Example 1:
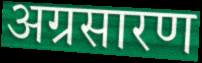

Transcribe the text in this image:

अग्रसारण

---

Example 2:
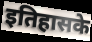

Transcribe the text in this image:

इतिहासके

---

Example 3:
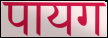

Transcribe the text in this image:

पायग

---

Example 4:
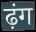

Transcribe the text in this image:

ढ़ंग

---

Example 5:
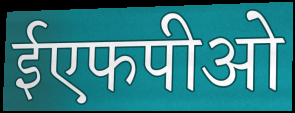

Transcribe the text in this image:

ईएफपीओ